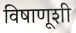
विषाणूशी